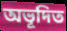
অভূদিত